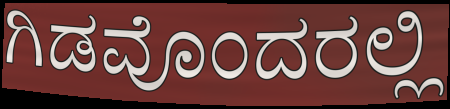
ಗಿಡವೊಂದರಲ್ಲಿ